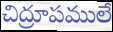
చిద్రూపములే